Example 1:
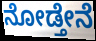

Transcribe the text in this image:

ನೋಡ್ತೇನೆ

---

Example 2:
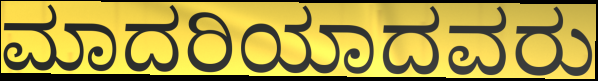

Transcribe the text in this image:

ಮಾದರಿಯಾದವರು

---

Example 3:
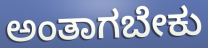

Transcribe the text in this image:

ಅಂತಾಗಬೇಕು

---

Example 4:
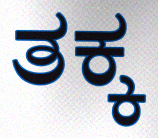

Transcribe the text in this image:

ತಕ್ಕ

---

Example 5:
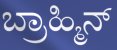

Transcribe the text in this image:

ಬ್ರಾಹ್ಮಿನ್